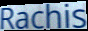
Rachis